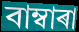
বাম্বাৰা